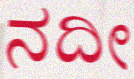
ನದೀ